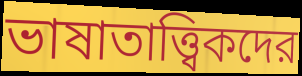
ভাষাতাত্ত্বিকদের